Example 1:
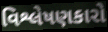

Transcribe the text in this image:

વિશ્લેષણકારો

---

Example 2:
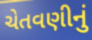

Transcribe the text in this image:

ચેતવણીનું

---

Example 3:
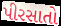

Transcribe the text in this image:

પીરસાતો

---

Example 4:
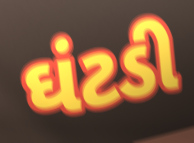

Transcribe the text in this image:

ઘંટડી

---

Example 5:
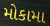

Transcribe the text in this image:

મોકામા